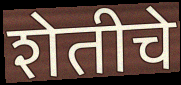
शेतीचे